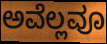
ಅವೆಲ್ಲವೂ